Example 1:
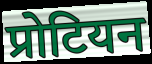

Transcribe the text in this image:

प्रोटियन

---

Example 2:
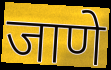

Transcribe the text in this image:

जाणे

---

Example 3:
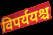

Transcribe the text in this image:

विपर्ययश्च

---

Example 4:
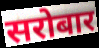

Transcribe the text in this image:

सरोबार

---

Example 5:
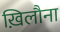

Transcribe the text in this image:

ख़िलौना